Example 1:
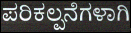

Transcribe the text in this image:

ಪರಿಕಲ್ಪನೆಗಳಾಗಿ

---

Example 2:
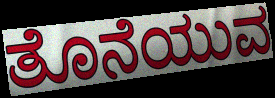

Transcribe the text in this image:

ತೊನೆಯುವ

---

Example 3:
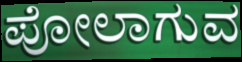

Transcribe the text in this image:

ಪೋಲಾಗುವ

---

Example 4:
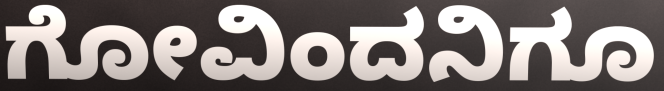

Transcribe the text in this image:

ಗೋವಿಂದನಿಗೂ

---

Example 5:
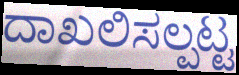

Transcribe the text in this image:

ದಾಖಲಿಸಲ್ಪಟ್ಟ